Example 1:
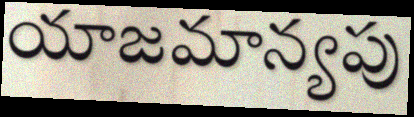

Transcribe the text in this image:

యాజమాన్యపు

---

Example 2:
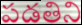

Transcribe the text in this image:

పడతిని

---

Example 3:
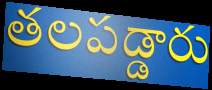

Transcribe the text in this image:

తలపడ్డారు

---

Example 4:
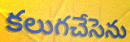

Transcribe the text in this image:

కలుగచేసెను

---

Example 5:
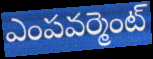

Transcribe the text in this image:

ఎంపవర్మెంట్